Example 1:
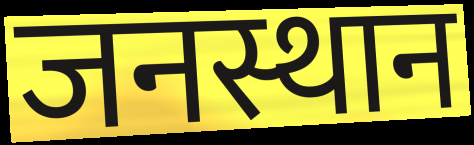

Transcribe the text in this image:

जनस्थान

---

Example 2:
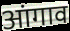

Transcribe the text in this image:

आंगाव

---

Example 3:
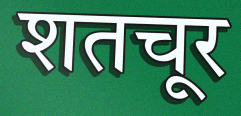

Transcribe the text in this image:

शतचूर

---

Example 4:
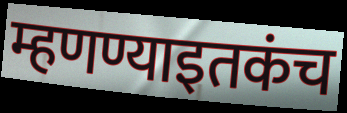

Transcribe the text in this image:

म्हणण्याइतकंच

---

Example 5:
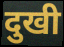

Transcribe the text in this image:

दुखी